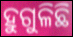
ହୁଗୁଳିଛି